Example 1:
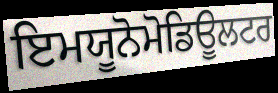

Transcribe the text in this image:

ਇਮਯੂਨੋਮੋਡਿਊਲਟਰ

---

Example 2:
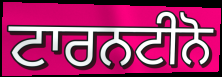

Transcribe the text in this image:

ਟਾਰਨਟੀਨੋ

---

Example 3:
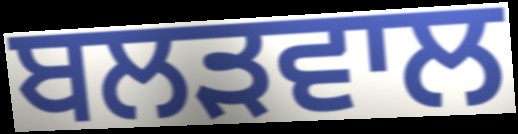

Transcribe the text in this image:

ਬਲੜਵਾਲ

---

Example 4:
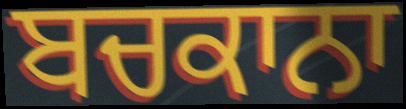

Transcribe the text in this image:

ਬਚਕਾਨਾ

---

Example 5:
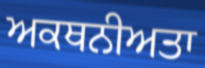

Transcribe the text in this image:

ਅਕਥਨੀਅਤਾ